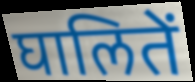
घालितें